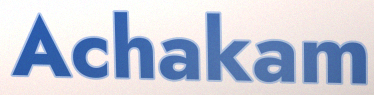
Achakam